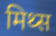
मिथ्स